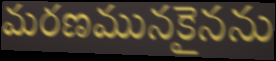
మరణమునకైనను